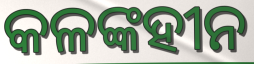
କଳଙ୍କହୀନ